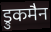
ड्रुकमैन